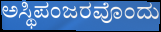
ಅಸ್ಥಿಪಂಜರವೊಂದು